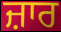
ਜ਼ਾਰ